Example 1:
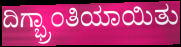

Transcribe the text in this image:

ದಿಗ್ಭ್ರಾಂತಿಯಾಯಿತು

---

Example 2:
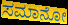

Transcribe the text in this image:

ಸಮಾನೋ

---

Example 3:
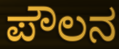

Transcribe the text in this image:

ಪೌಲನ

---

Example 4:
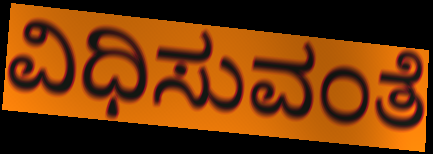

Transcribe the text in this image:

ವಿಧಿಸುವಂತೆ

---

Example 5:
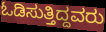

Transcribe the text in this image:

ಓಡಿಸುತ್ತಿದ್ದವರು